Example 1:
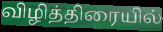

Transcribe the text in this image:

விழித்திரையில்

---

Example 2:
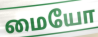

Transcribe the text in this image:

மையோ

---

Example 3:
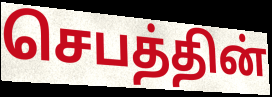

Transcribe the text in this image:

செபத்தின்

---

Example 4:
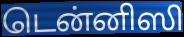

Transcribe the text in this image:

டென்னிஸி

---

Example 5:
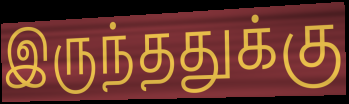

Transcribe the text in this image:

இருந்ததுக்கு